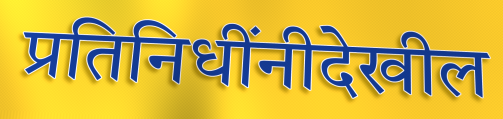
प्रतिनिधींनीदेखील